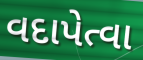
વદાપેત્વા